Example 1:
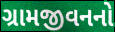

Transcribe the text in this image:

ગ્રામજીવનનો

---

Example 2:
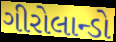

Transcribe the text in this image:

ગીરોલાન્ડો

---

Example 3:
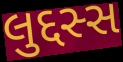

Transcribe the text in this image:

લુદ્દસ્સ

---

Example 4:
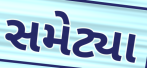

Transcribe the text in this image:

સમેટ્યા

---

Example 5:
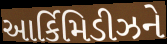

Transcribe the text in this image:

આર્કિમિડીઝને